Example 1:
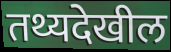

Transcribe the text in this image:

तथ्यदेखील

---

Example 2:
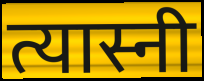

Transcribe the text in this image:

त्यास्नी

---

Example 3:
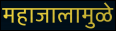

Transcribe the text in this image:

महाजालामुळे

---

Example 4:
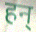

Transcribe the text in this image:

हन्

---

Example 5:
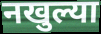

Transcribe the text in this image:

नखुल्या